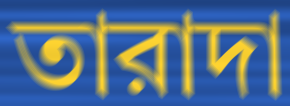
তারাদা